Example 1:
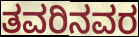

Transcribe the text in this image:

ತವರಿನವರ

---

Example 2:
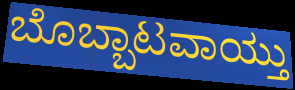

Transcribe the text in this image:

ಬೊಬ್ಬಾಟವಾಯ್ತು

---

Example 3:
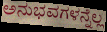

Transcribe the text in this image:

ಅನುಭವಗಳನ್ನೆಲ್ಲ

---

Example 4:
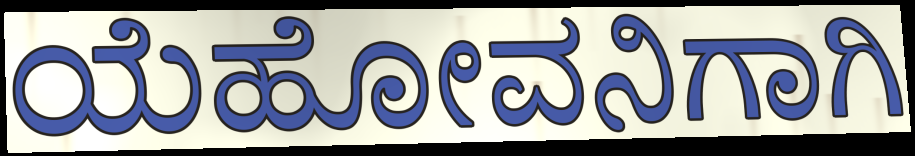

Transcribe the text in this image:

ಯೆಹೋವನಿಗಾಗಿ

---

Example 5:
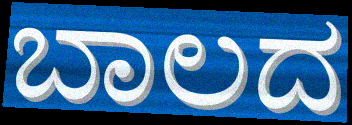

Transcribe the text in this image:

ಬಾಲದ